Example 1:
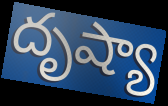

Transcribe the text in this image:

దృష్యా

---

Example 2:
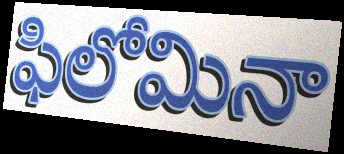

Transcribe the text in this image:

ఫిలోమినా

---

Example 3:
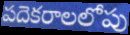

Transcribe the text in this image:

పదెకరాలలోపు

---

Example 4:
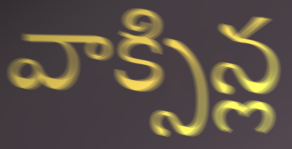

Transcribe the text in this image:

వాక్సిన్ల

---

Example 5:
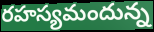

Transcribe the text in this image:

రహస్యమందున్న